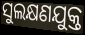
ସୁଲକ୍ଷଣଯୁକ୍ତ